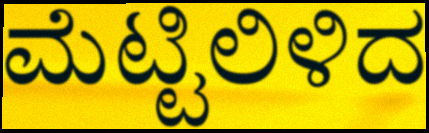
ಮೆಟ್ಟಿಲಿಳಿದ